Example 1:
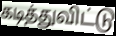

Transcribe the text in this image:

கடித்துவிட்டு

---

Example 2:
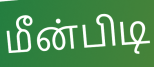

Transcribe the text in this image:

மீன்பிடி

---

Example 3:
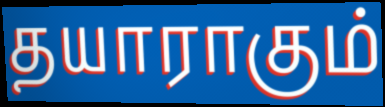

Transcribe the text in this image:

தயாராகும்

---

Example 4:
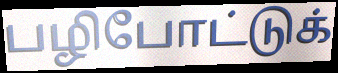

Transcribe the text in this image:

பழிபோட்டுக்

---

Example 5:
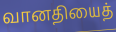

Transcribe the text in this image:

வானதியைத்